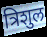
त्रिशुल